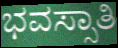
ಭವಸ್ಸಾತಿ